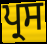
ਪ੍ਰਸ